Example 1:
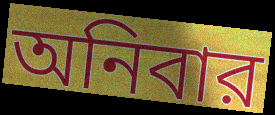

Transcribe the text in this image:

অনিবার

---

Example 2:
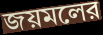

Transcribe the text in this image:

জয়মলের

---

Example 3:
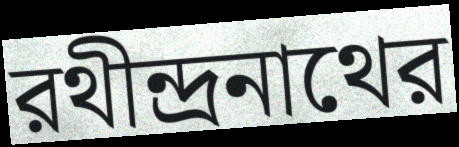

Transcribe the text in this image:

রথীন্দ্রনাথের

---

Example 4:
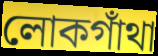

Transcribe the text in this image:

লোকগাঁথা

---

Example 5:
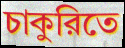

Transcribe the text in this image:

চাকুরিতে